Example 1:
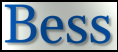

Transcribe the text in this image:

Bess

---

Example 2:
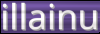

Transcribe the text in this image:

illainu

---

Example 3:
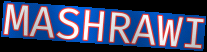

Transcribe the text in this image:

MASHRAWI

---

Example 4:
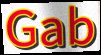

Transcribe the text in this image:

Gab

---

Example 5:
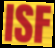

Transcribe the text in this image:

ISF